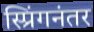
स्प्रिंगनंतर